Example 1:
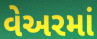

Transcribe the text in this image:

વેઅરમાં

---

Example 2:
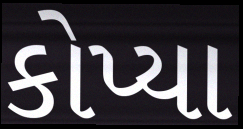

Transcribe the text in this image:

કોપ્યા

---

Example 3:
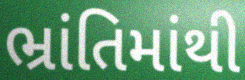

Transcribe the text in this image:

ભ્રાંતિમાંથી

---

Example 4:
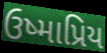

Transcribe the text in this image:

ઉષ્માપ્રિય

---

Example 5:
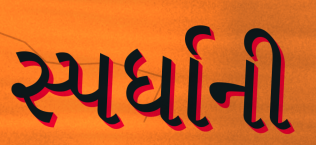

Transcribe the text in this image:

સ્પર્ધાની